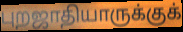
புறஜாதியாருக்குக்